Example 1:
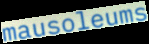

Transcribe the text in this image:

mausoleums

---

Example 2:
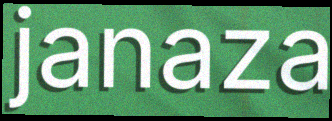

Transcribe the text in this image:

janaza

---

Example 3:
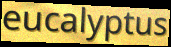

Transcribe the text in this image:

eucalyptus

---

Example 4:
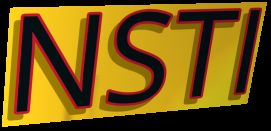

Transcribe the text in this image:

NSTI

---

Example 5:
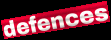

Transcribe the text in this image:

defences